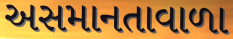
અસમાનતાવાળા